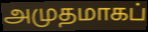
அமுதமாகப்